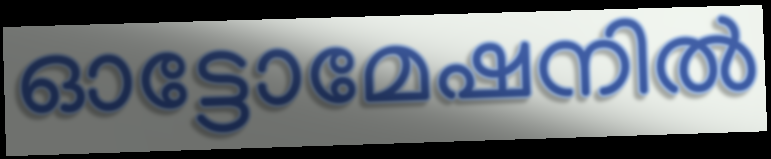
ഓട്ടോമേഷനിൽ